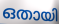
ഒതായി